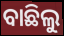
ବାଛିଲୁ